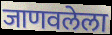
जाणवलेला